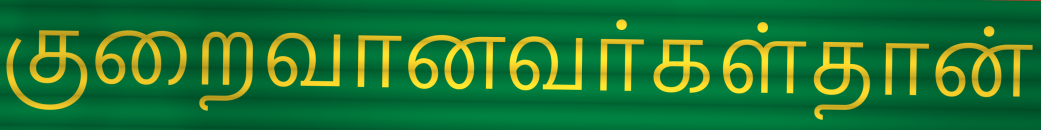
குறைவானவர்கள்தான்